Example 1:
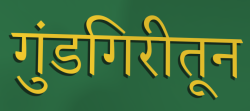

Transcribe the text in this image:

गुंडगिरीतून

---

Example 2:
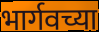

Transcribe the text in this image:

भार्गवच्या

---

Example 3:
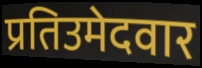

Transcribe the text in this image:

प्रतिउमेदवार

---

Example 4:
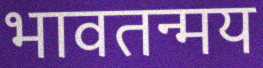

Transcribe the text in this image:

भावतन्मय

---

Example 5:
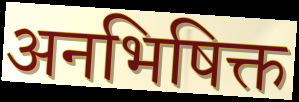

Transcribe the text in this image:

अनभिषिक्त